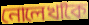
নোলেখাকৈ